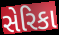
સેરિકા